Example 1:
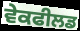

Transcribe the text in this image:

ਵੇਕਫੀਲਡ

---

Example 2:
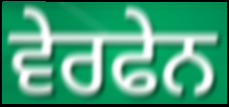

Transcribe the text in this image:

ਵੇਰਫੇਨ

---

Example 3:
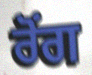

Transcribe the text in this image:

ਰੋਂਗ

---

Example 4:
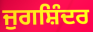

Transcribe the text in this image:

ਜੁਗਸ਼ਿੰਦਰ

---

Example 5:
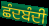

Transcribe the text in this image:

ਛੰਦਬੰਦੀ